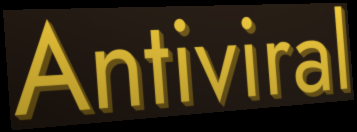
Antiviral